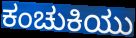
ಕಂಚುಕಿಯು